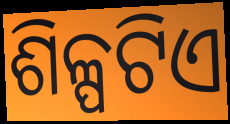
ଶିଳ୍ପଟିଏ